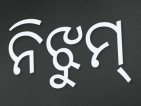
ନିଝୁମ୍